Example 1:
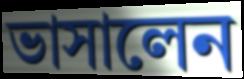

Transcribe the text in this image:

ভাসালেন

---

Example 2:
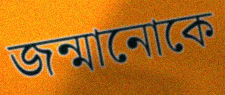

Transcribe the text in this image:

জন্মানোকে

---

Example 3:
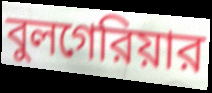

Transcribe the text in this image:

বুলগেরিয়ার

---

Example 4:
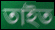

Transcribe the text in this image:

তাইত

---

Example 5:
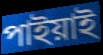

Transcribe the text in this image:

পাইয়াই